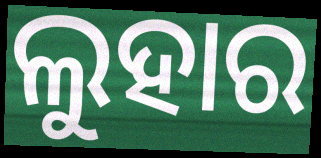
ଲୁହାର